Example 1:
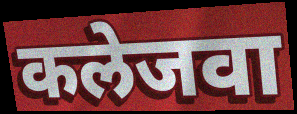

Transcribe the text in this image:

कलेजवा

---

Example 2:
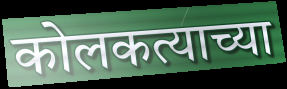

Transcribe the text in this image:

कोलकत्याच्या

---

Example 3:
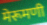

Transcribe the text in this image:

मेरूमणी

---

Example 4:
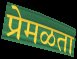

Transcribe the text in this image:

प्रेमळता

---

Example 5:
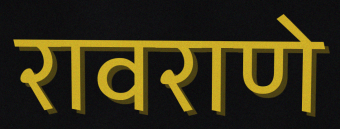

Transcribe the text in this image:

रावराणे